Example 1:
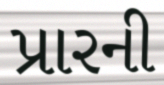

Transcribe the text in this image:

પ્રારની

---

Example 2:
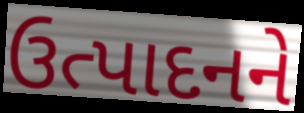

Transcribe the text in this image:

ઉત્પાદનને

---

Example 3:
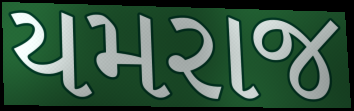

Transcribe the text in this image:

યમરાજ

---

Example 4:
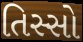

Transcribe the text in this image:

તિસ્સો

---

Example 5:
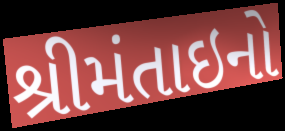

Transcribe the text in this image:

શ્રીમંતાઇનો